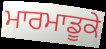
ਮਾਰਮਾਡੂਕੇ